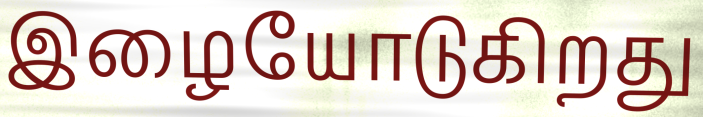
இழையோடுகிறது